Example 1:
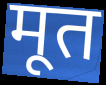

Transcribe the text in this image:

मूत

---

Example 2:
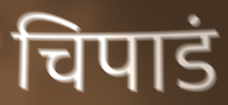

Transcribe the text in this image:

चिपाडं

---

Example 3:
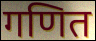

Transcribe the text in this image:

गणित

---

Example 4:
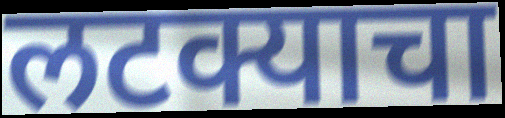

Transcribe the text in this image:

लटक्याचा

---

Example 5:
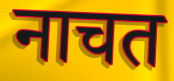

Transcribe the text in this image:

नाचत